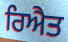
ਰਿਐਤ